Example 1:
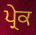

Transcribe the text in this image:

ਪ੍ਰੇਕ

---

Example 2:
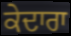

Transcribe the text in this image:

ਕੇਦਾਰਾ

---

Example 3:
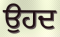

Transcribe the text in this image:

ਉਹਦ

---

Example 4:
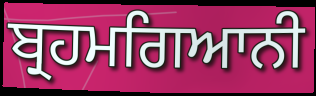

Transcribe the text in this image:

ਬ੍ਰਹਮਗਿਆਨੀ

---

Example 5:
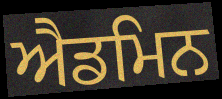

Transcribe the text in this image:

ਐਡਮਿਨ